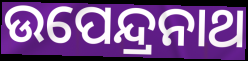
ଉପେନ୍ଦ୍ରନାଥ